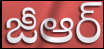
జీఆర్